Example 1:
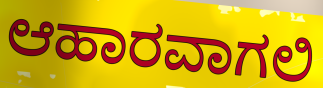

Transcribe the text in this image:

ಆಹಾರವಾಗಲಿ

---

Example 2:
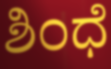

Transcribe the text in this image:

ಶಿಂಧೆ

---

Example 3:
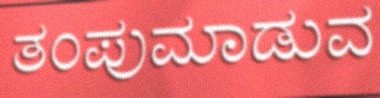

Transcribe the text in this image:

ತಂಪುಮಾಡುವ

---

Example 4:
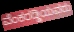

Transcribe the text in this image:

ವೆಂಕರಡ್ಡಿಯವರು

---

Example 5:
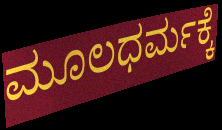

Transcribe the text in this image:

ಮೂಲಧರ್ಮಕ್ಕೆ